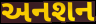
અનશન